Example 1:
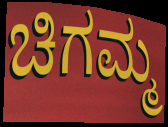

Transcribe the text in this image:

ಚಿಗಮ್ಮ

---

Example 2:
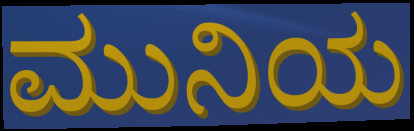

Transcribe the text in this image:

ಮುನಿಯ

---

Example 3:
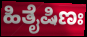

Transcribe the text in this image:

ಹಿತೈಷಿಣಃ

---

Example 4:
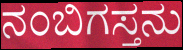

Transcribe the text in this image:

ನಂಬಿಗಸ್ತನು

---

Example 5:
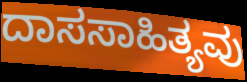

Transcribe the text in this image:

ದಾಸಸಾಹಿತ್ಯವು